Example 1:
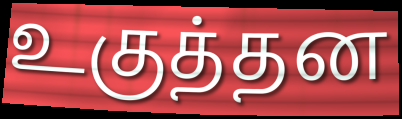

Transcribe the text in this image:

உகுத்தன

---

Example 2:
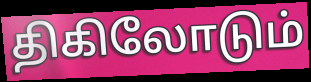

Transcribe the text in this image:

திகிலோடும்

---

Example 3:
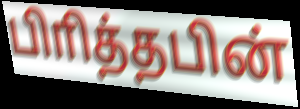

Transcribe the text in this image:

பிரித்தபின்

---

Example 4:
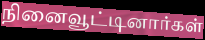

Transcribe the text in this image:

நினைவூட்டினார்கள்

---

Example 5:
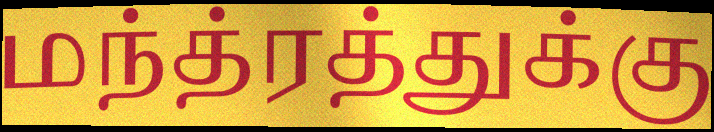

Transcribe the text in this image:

மந்த்ரத்துக்கு